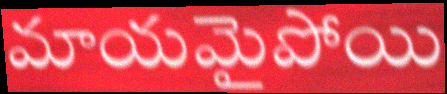
మాయమైపోయి